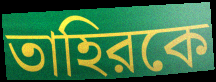
তাহিরকে